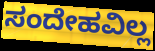
ಸಂದೇಹವಿಲ್ಲ